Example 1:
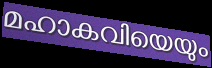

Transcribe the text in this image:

മഹാകവിയെയും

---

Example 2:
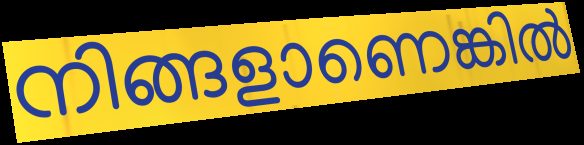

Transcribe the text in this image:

നിങ്ങളാണെങ്കിൽ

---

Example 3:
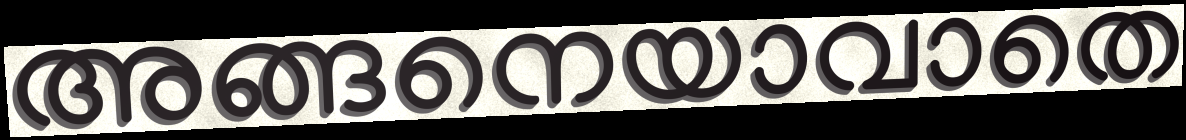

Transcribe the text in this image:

അങ്ങനെയാവാതെ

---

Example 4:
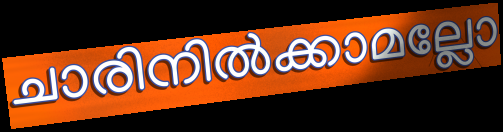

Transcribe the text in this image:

ചാരിനിൽക്കാമല്ലോ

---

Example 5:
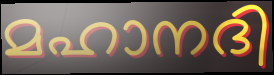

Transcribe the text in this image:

മഹാനദി